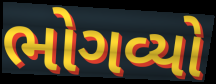
ભોગવ્યો